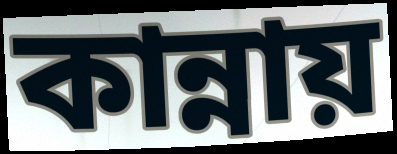
কান্নায়